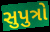
સુપુત્રો